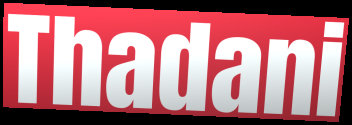
Thadani